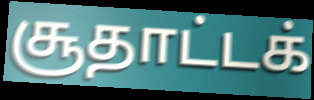
சூதாட்டக்